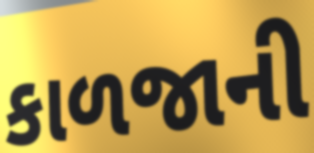
કાળજાની